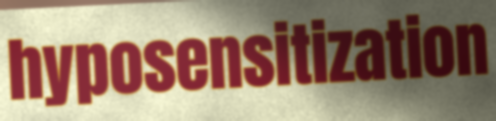
hyposensitization